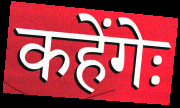
कहेंगेः